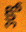
క్లో